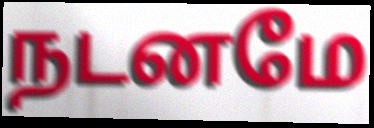
நடனமே